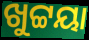
ଖୁଟ୍ଟୟା